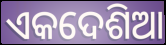
ଏକଦେଶିଆ